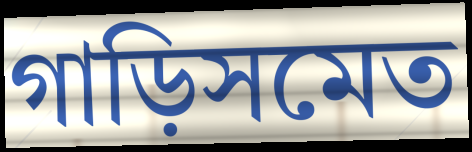
গাড়িসমেত